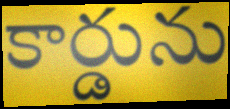
కార్డును